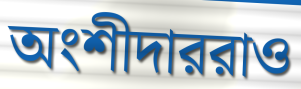
অংশীদাররাও